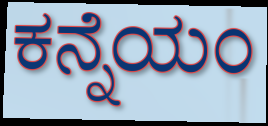
ಕನ್ನೆಯಂ